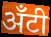
अँटी